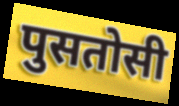
पुसतोसी